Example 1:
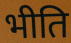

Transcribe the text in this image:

भीति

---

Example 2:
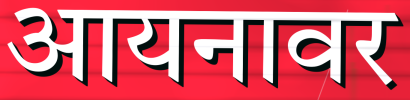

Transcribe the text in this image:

आयनावर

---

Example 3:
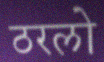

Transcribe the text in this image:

ठरलो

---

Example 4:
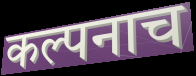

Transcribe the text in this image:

कल्पनाच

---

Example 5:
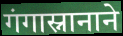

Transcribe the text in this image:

गंगास्नानाने